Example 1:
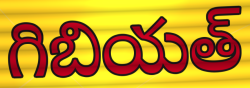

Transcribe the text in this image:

గిబియత్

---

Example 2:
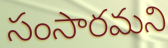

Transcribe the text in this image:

సంసారమని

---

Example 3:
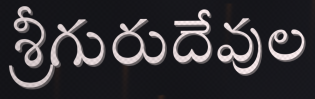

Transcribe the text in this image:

శ్రీగురుదేవుల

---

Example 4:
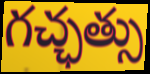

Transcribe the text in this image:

గచ్ఛత్సు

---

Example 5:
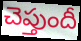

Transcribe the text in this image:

చెప్తుందీ